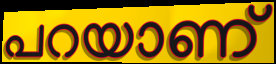
പറയാണ്